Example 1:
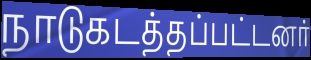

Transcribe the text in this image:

நாடுகடத்தப்பட்டனர்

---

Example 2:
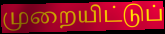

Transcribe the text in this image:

முறையிட்டுப்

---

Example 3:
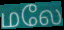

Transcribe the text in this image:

மலே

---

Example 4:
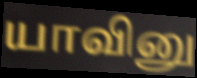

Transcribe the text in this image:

யாவினு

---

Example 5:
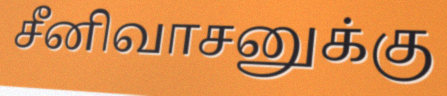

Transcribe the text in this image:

சீனிவாசனுக்கு